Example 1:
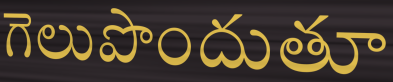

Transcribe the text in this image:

గెలుపొందుతూ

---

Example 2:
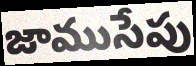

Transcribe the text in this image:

జాముసేపు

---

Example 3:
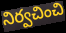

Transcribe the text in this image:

నిర్వచించి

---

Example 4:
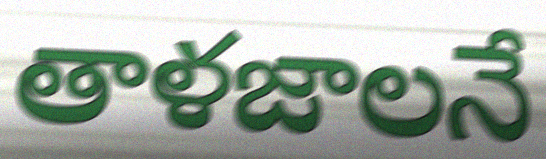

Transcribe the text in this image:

తాళజాలనే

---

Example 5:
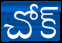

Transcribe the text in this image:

చోక్